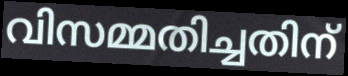
വിസമ്മതിച്ചതിന്